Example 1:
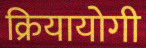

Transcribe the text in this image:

क्रियायोगी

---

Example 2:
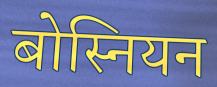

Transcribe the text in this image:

बोस्नियन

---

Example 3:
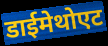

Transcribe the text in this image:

डाईमेथोएट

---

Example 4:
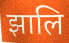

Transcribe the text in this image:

झालि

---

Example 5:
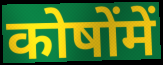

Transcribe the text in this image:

कोषोंमें